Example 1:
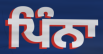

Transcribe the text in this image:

ਪਿੰਨਾ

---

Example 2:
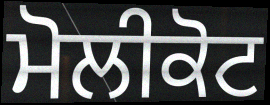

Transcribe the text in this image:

ਮੋਲੀਕੋਟ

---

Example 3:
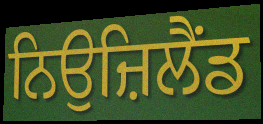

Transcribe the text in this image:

ਨਿਉਜ਼ਿਲੈਂਡ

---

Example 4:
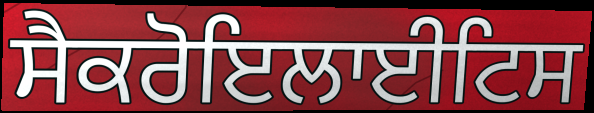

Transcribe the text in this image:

ਸੈਕਰੋਇਲਾਈਟਿਸ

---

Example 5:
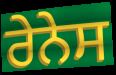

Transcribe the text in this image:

ਰੇਨੇਸ